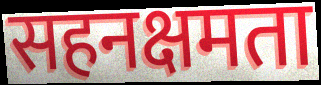
सहनक्षमता